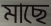
মাছে